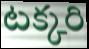
టక్కరి